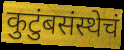
कुटुंबसंस्थेचं